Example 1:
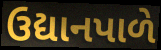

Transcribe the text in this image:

ઉદ્યાનપાળે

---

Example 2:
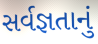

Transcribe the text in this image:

સર્વજ્ઞતાનું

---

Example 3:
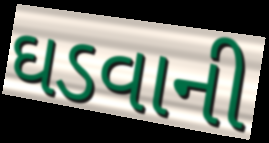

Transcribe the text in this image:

ઘડવાની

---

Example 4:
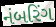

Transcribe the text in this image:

નંબરિંગ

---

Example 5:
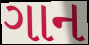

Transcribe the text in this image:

ગાન